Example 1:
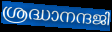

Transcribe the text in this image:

ശ്രദ്ധാനന്ദജി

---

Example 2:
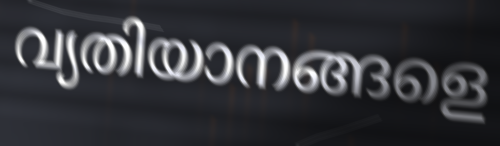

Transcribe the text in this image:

വ്യതിയാനങ്ങളെ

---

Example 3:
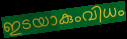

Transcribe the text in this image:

ഇടയാകുംവിധം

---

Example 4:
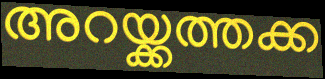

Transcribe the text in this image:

അറയ്ക്കത്തക്ക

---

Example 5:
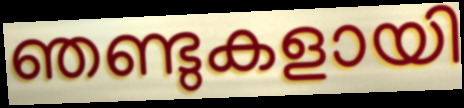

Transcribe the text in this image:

ഞണ്ടുകളായി